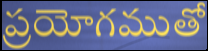
ప్రయోగముతో